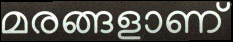
മരങ്ങളാണ്